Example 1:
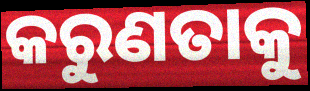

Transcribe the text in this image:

କରୁଣତାକୁ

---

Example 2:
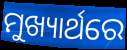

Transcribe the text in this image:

ମୁଖ୍ୟାର୍ଥରେ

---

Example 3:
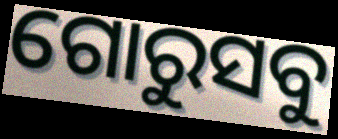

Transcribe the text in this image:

ଗୋରୁସବୁ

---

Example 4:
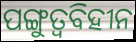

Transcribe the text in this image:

ପଙ୍ଗୁତ୍ୱବିହୀନ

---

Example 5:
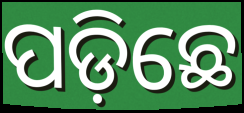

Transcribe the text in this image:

ପଡ଼ିଛେ